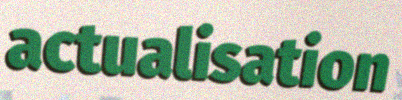
actualisation